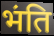
भंति